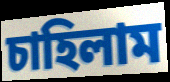
চাহিলাম